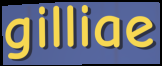
gilliae